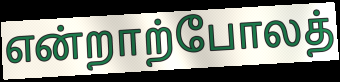
என்றாற்போலத்